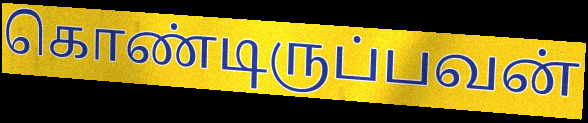
கொண்டிருப்பவன்